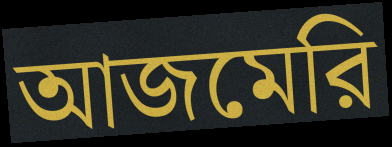
আজমেরি